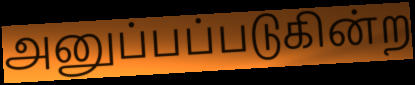
அனுப்பப்படுகின்ற